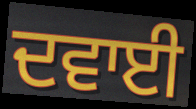
ਦਵਾਈ